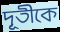
দূতীকে